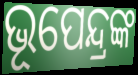
ଭୂପେନ୍ଦ୍ରଙ୍କ